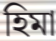
হিমা